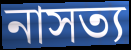
নাসত্য